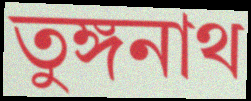
তুঙ্গনাথ